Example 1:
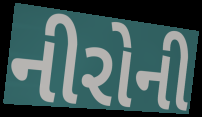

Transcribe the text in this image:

નીરોની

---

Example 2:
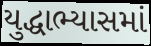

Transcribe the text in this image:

યુદ્ધાભ્યાસમાં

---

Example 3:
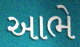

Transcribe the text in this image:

આભે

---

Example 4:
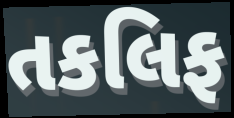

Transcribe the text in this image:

તકલિફ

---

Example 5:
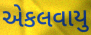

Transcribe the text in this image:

એકલવાયુ